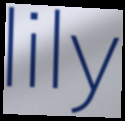
lily